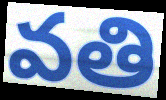
వతి